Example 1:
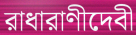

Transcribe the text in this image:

রাধারাণীদেবী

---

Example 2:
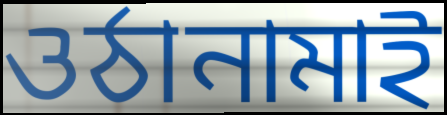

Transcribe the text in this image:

ওঠানামাই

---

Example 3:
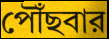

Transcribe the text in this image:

পৌঁছবার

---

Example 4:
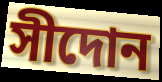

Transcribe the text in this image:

সীদোন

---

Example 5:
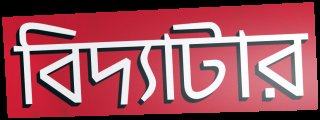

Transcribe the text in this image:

বিদ্যাটার